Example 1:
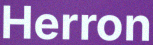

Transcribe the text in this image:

Herron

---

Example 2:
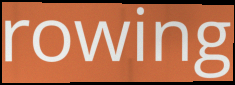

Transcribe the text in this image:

rowing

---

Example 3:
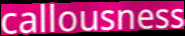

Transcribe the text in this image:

callousness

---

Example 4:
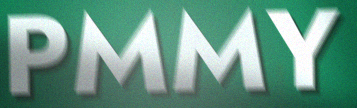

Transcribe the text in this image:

PMMY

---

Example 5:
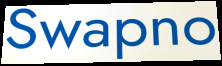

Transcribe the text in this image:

Swapno